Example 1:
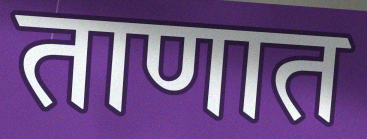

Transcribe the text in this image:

ताणात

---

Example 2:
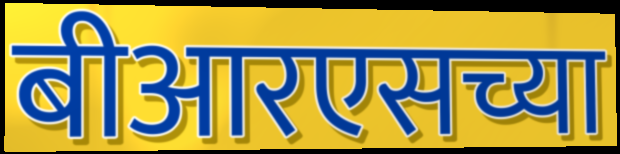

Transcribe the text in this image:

बीआरएसच्या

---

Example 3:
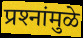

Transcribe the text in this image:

प्रश्‍नांमुळे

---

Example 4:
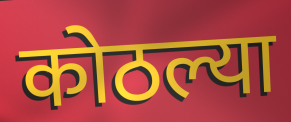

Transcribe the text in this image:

कोठल्या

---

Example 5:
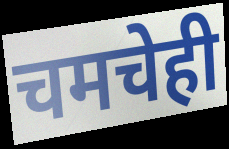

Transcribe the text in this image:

चमचेही